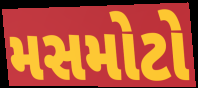
મસમોટો